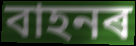
বাহনৰ